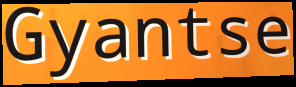
Gyantse